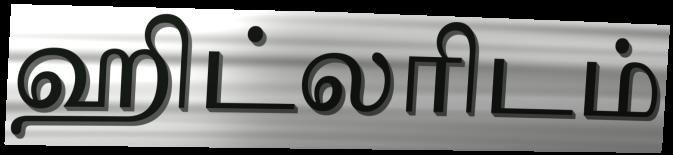
ஹிட்லரிடம்